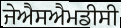
ਜੇਐਸਐਮਡੀਸੀ